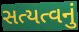
સત્યત્વનું